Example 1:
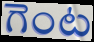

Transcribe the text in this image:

గెంట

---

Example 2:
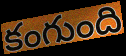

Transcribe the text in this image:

కంగుంది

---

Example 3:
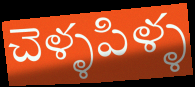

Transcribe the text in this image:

చెళ్ళపిళ్ళ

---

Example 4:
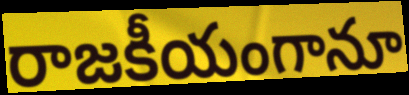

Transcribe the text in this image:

రాజకీయంగానూ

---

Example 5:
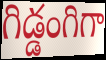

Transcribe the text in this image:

గిడ్డంగిగా